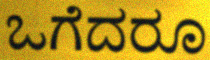
ಒಗೆದರೂ